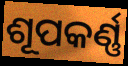
ଶୂପକର୍ଣ୍ଣ